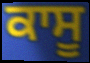
ਕਾਸੂ